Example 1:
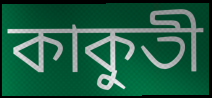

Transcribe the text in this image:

কাকুতী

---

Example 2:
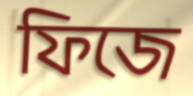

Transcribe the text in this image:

ফিজে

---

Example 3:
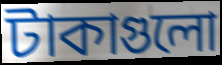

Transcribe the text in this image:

টাকাগুলো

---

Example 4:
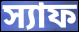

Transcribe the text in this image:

স্যাফ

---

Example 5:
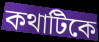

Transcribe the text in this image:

কথাটিকে